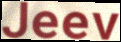
Jeev